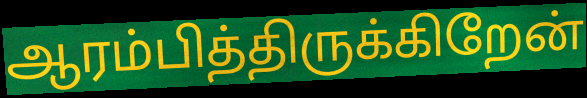
ஆரம்பித்திருக்கிறேன்